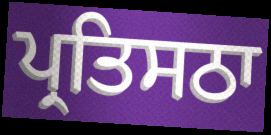
ਪ੍ਰਤਿਸਠਾ